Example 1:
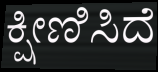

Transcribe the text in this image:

ಕ್ಷೀಣಿಸಿದೆ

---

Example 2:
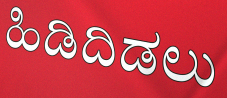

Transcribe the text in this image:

ಹಿಡಿದಿಡಲು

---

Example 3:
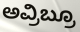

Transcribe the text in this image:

ಅವ್ರಿಬ್ರೂ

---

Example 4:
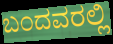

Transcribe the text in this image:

ಬಂದವರಲ್ಲಿ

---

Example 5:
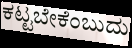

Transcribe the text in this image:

ಕಟ್ಟಬೇಕೆಂಬುದು